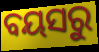
ବୟସରୁ